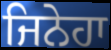
ਜਿਨੇਹਾ